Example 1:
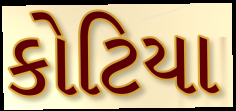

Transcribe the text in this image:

કોટિયા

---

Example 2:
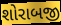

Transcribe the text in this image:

શોરાબજી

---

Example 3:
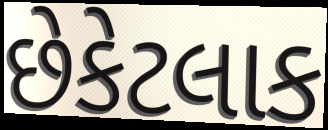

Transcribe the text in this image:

છેકેટલાક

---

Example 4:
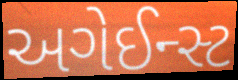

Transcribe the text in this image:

અગેઈન્સ્ટ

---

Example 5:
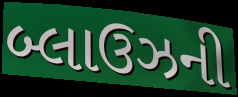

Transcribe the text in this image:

બ્લાઉઝની